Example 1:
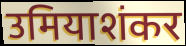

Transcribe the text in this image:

उमियाशंकर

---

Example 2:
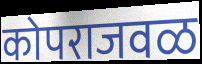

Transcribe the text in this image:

कोपराजवळ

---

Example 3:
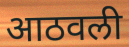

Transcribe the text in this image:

आठवली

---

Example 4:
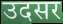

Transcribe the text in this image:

उदसर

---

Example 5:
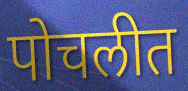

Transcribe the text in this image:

पोचलीत